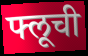
फ्लूची